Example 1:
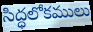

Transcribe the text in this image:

సిద్ధలోకములు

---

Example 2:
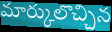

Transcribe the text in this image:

మార్కులొచ్చిన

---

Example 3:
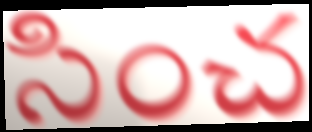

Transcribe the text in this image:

సించ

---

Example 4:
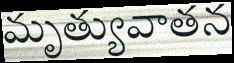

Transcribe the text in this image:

మృత్యువాతన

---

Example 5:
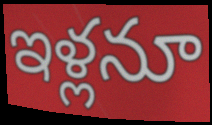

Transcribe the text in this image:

ఇళ్లనూ